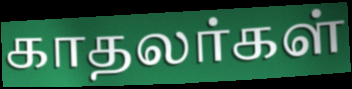
காதலர்கள்